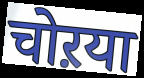
चोऱया